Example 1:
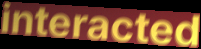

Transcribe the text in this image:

interacted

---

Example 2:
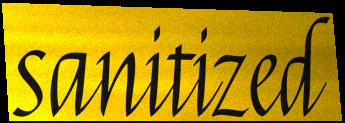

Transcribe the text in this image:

sanitized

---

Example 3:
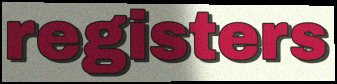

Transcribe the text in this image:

registers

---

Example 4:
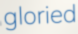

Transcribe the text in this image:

gloried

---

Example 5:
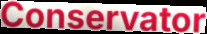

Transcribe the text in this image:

Conservator